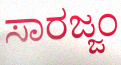
ಸಾರಜ್ಜಂ